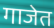
गाजेत